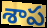
శాప